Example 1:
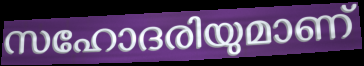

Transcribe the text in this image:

സഹോദരിയുമാണ്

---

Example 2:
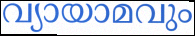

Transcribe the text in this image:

വ്യായാമവും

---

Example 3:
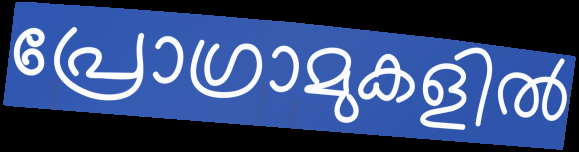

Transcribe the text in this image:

പ്രോഗ്രാമുകളിൽ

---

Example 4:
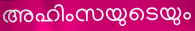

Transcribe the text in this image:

അഹിംസയുടെയും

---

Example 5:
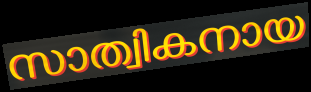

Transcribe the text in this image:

സാത്വികനായ